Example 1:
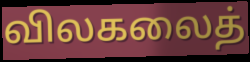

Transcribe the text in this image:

விலகலைத்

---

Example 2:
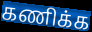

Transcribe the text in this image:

கணிக்க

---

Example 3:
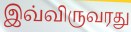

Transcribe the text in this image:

இவ்விருவரது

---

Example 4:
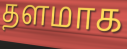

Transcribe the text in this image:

தளமாக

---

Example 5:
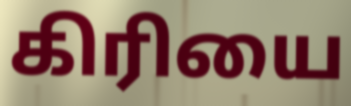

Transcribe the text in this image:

கிரியை